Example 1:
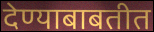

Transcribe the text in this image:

देण्याबाबतीत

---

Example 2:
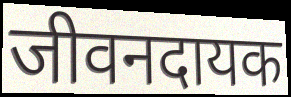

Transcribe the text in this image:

जीवनदायक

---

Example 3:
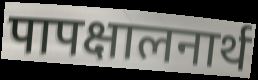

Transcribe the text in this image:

पापक्षालनार्थ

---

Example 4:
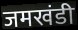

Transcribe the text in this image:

जमखंडी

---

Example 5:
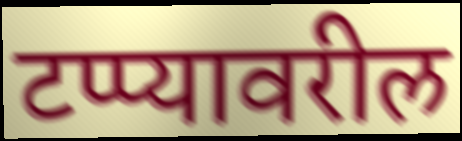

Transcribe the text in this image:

टप्प्यावरील